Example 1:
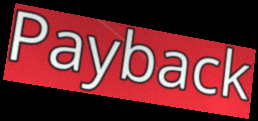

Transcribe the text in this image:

Payback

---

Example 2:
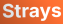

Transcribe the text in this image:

Strays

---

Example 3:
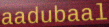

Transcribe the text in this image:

aadubaal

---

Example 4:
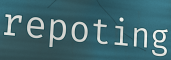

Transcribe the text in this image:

repoting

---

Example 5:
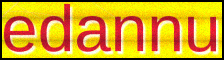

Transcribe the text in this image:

edannu